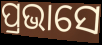
ପ୍ରଭାସେ